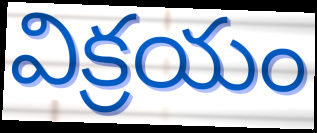
విక్రయం